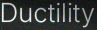
Ductility